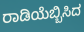
ರಾಡಿಯೆಬ್ಬಿಸಿದ